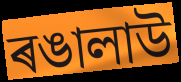
ৰঙালাউ